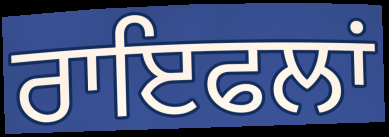
ਰਾਇਫਲਾਂ